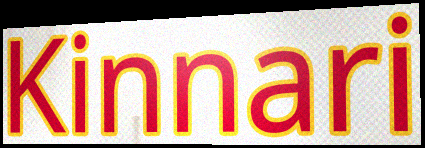
Kinnari